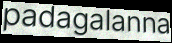
padagalanna